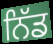
ਨਿੱਡ